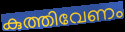
കുത്തിവേണം